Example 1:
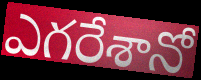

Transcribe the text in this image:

ఎగరేశానో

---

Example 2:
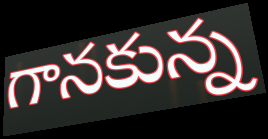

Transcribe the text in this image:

గానకున్న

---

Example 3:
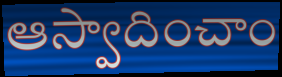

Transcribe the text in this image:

ఆస్వాదించాం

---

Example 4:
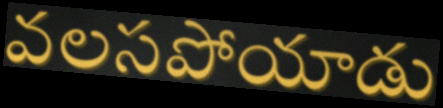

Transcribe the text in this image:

వలసపోయాడు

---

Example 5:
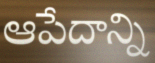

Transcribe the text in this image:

ఆపేదాన్ని